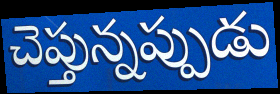
చెప్తున్నప్పుడు